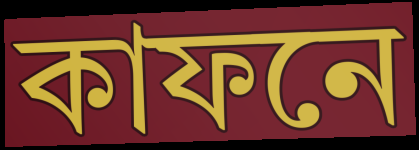
কাফনে